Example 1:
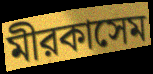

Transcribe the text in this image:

মীরকাসেম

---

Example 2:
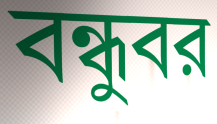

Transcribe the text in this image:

বন্ধুবর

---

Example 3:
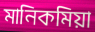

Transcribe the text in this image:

মানিকমিয়া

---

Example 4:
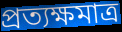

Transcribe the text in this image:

প্রত্যক্ষমাত্র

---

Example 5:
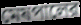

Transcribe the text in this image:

মেষপালের